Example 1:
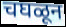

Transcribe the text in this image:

चघळून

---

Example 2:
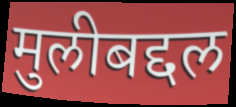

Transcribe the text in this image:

मुलीबद्दल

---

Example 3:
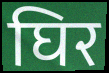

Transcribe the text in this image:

घिर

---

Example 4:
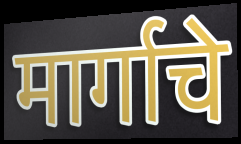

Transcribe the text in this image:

मार्गाचे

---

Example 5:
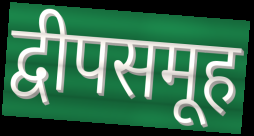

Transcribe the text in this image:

द्वीपसमूह